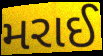
મરાઈ